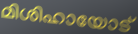
മിശിഹായോട്